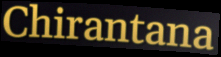
Chirantana